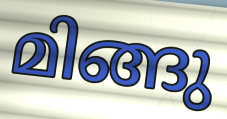
മിങ്ങു